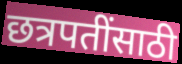
छत्रपतींसाठी